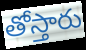
తోస్తారు